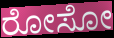
ರೋಸೋ